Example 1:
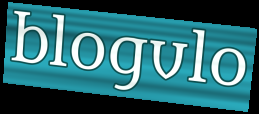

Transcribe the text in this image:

blogulo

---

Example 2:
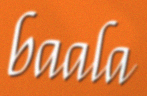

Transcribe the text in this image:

baala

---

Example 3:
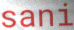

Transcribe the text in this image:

sani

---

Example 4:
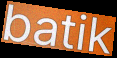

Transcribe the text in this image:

batik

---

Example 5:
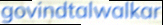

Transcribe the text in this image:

govindtalwalkar